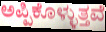
ಅಪ್ಪಿಕೊಳ್ಳುತ್ತವೆ